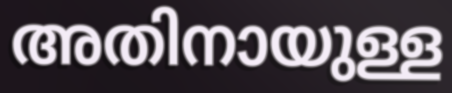
അതിനായുള്ള